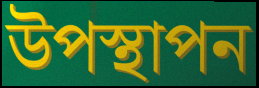
উপস্থাপন